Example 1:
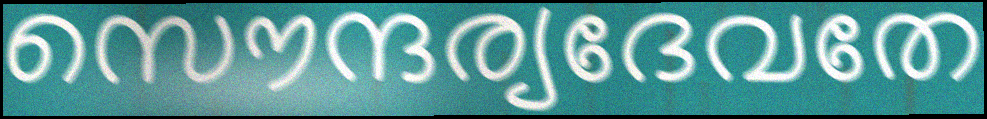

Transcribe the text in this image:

സൌന്ദര്യദേവതേ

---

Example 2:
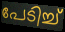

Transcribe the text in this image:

പേടിച്ച്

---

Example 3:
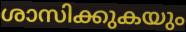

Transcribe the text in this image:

ശാസിക്കുകയും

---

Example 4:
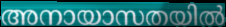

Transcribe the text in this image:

അനായാസതയിൽ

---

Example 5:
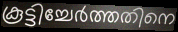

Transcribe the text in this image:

കൂട്ടിച്ചേർത്തതിനെ